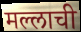
मल्लाची